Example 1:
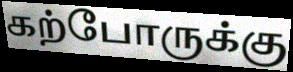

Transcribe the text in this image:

கற்போருக்கு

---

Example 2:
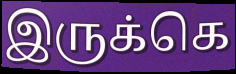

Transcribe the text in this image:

இருக்கெ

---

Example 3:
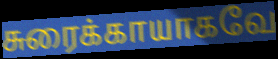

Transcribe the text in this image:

சுரைக்காயாகவே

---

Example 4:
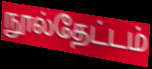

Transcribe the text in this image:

நூல்தேட்டம்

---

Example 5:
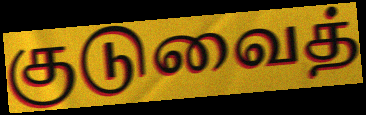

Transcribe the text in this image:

குடுவைத்